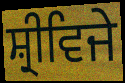
ਸ਼੍ਰੀਵਿਜੇ